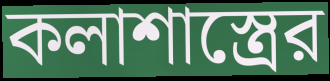
কলাশাস্ত্রের